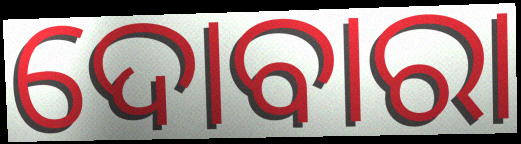
ଦୋବାରା